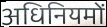
अधिनियमों